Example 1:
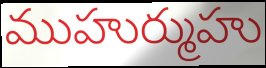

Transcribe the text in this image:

ముహుర్ముహు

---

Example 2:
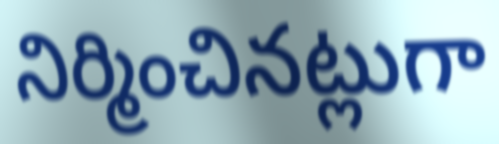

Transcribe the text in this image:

నిర్మించినట్లుగా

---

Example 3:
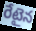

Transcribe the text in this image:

రేటైన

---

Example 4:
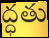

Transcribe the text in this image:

ద్ధతు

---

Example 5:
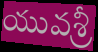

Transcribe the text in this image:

యువశ్రీ